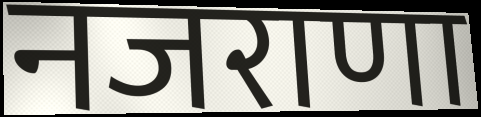
नजराणा